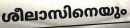
ശീലാസിനെയും